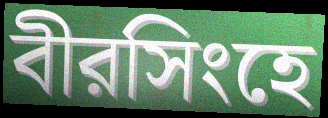
বীরসিংহে